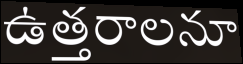
ఉత్తరాలనూ